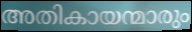
അതികായന്മാരും